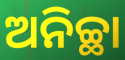
ଅନିଚ୍ଛା